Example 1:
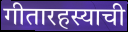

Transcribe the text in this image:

गीतारहस्याची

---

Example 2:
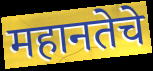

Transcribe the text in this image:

महानतेचे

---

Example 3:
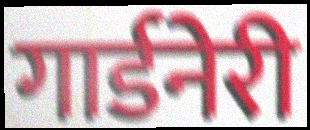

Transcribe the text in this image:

गार्डनेरी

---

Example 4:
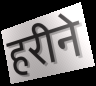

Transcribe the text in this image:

हरीने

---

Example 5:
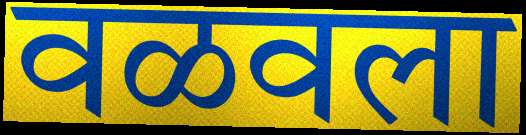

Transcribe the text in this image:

वळवला